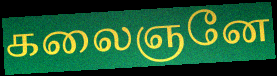
கலைஞனே